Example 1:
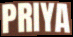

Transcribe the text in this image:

PRIYA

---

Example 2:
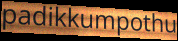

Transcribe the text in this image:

padikkumpothu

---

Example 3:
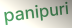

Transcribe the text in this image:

panipuri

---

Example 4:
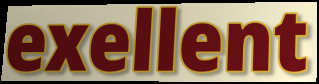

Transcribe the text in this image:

exellent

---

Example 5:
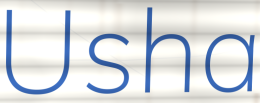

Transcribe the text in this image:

Usha